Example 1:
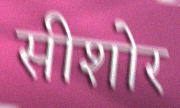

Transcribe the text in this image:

सीशोर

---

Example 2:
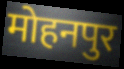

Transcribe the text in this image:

मोहनपुर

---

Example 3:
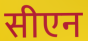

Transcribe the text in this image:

सीएन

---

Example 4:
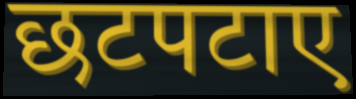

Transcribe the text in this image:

छटपटाए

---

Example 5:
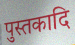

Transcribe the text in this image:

पुस्तकादि